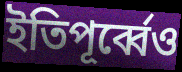
ইতিপূর্ব্বেও